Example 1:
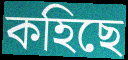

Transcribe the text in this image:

কহিছে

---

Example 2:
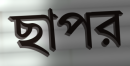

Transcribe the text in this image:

ছাপর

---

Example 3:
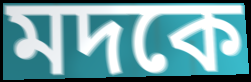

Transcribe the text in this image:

মদকে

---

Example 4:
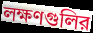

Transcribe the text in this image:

লক্ষণগুলির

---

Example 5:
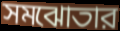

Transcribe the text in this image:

সমঝোতার